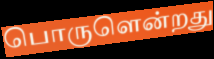
பொருளென்றது